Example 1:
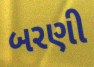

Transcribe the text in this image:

બરણી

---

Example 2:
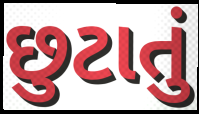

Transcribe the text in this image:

છુટાતું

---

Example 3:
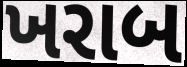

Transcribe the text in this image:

ખરાબ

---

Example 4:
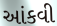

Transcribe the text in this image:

આંકવી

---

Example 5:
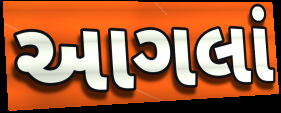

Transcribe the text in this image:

આગલાં